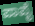
ಪಾಪೈ